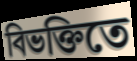
বিভক্তিতে